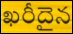
ఖరీదైన